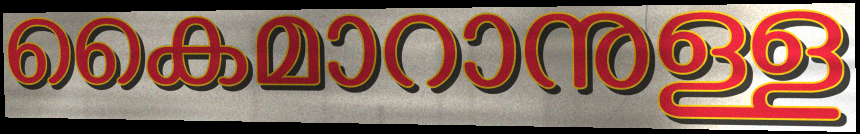
കൈമാറാനുള്ള